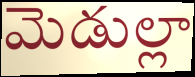
మెడుల్లా